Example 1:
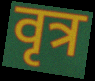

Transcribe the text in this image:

वृत्र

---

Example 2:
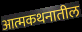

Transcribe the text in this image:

आत्मकथनातील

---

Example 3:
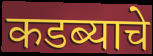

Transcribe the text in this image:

कडब्याचे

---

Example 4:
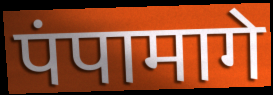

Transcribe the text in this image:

पंपामागे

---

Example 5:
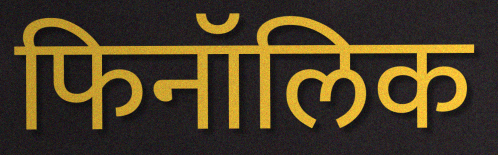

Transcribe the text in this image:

फिनॉलिक